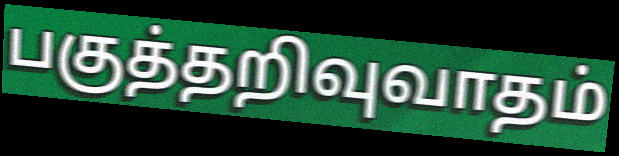
பகுத்தறிவுவாதம்